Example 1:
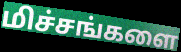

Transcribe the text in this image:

மிச்சங்களை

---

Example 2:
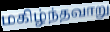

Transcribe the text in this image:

மகிழ்ந்தவாறு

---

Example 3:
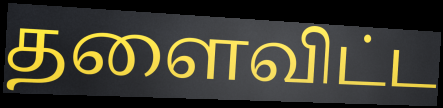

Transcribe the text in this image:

தளைவிட்ட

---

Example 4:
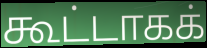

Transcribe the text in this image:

கூட்டாகக்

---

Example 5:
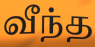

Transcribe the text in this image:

வீந்த